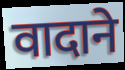
वादाने